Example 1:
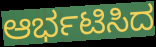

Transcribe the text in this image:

ಆರ್ಭಟಿಸಿದ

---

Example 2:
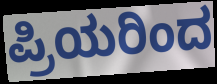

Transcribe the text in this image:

ಪ್ರಿಯರಿಂದ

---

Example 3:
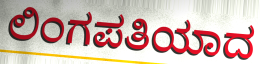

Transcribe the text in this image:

ಲಿಂಗಪತಿಯಾದ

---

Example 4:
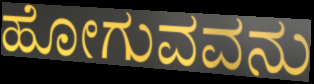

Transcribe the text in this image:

ಹೋಗುವವನು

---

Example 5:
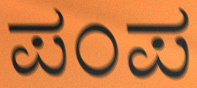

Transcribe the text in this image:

ಪಂಪ